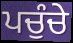
ਪਚੁੰਚੇ